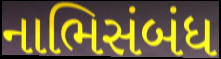
નાભિસંબંધ